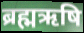
ब्रह्मऋषि